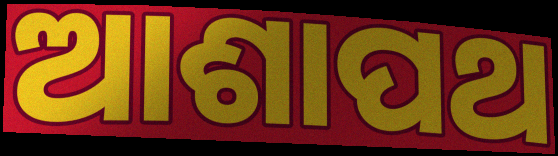
ଆଶାପଥ